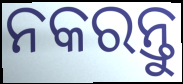
ନକରନ୍ତୁ